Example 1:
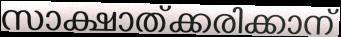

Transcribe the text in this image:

സാക്ഷാത്ക്കരിക്കാന്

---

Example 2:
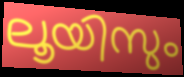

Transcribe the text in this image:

ലൂയിസും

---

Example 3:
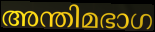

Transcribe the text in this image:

അന്തിമഭാഗ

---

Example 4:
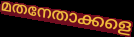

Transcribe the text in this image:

മതനേതാക്കളെ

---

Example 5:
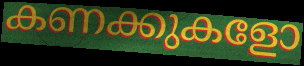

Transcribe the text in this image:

കണക്കുകളോ